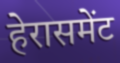
हेरासमेंट